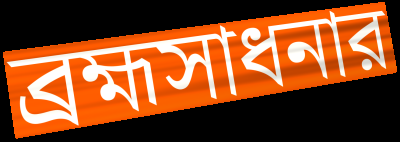
ব্রহ্মসাধনার